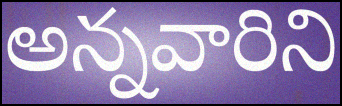
అన్నవారిని